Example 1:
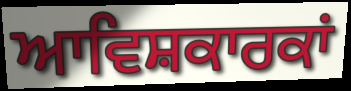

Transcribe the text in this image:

ਆਵਿਸ਼ਕਾਰਕਾਂ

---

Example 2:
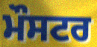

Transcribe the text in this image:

ਮੌਸਟਰ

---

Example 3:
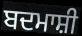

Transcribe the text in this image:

ਬਦਮਾਸ਼ੀ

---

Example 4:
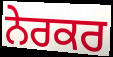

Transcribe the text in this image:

ਨੇਰਕਰ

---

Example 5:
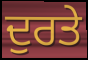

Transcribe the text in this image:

ਦੁਰਤੇ